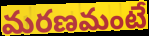
మరణమంటే